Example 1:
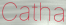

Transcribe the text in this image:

Catha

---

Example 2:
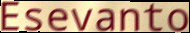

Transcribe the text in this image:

Esevanto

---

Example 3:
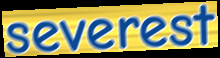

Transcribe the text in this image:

severest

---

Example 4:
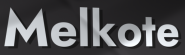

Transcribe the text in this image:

Melkote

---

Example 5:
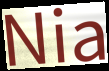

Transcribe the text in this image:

Nia